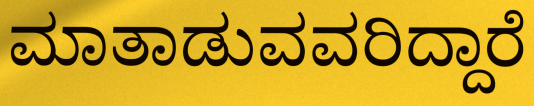
ಮಾತಾಡುವವರಿದ್ದಾರೆ